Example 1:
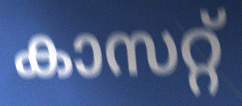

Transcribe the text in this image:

കാസറ്റ്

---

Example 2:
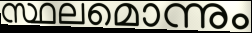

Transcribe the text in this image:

സ്ഥലമൊന്നും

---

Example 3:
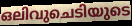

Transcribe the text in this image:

ഒലിവുചെടിയുടെ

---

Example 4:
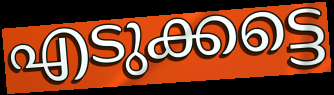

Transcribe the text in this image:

എടുക്കട്ടെ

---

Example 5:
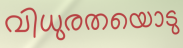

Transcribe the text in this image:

വിധുരതയൊടു